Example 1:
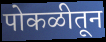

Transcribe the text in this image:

पोकळीतून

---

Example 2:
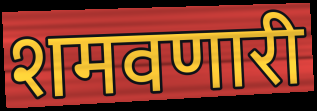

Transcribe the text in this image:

शमवणारी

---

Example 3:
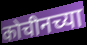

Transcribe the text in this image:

कोचीनच्या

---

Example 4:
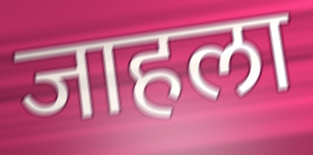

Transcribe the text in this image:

जाहला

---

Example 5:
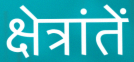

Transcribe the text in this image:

क्षेत्रांतें